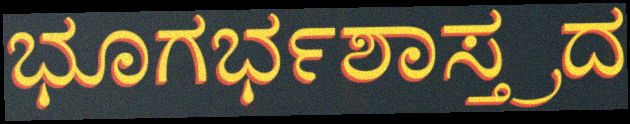
ಭೂಗರ್ಭಶಾಸ್ತ್ರದ